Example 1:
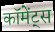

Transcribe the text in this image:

कॉमेंट्स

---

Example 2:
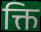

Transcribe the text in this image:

क्ति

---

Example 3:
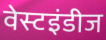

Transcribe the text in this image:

वेस्टइंडीज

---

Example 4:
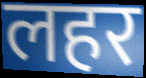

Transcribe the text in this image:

लहर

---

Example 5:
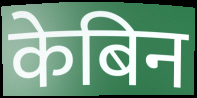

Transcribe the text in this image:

केबिन